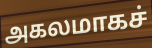
அகலமாகச்